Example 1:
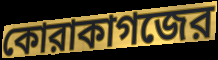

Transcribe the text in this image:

কোরাকাগজের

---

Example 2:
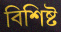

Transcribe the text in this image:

বিশিষ্ট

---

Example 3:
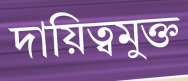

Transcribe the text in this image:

দায়িত্বমুক্ত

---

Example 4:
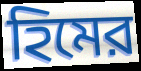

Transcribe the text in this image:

হিমের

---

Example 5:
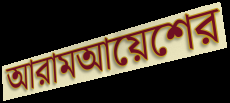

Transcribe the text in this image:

আরামআয়েশের